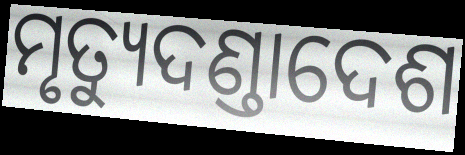
ମୃତ୍ୟୁଦଣ୍ଡାଦେଶ